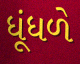
ધૂંધળે